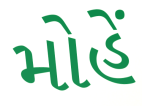
મોહેં